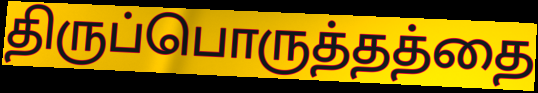
திருப்பொருத்தத்தை